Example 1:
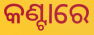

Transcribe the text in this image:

କଣ୍ଟାରେ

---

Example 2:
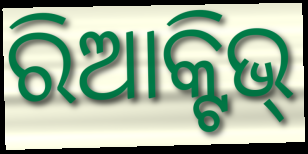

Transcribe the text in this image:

ରିଆକ୍ଟିଭ୍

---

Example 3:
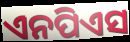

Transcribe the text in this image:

ଏନପିଏସ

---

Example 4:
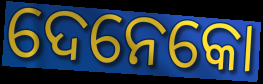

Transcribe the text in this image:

ଦେନେକୋ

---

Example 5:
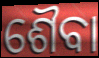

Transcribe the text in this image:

ଶୈବା